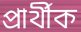
প্ৰাৰ্থীক